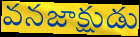
వనజాక్షుడు